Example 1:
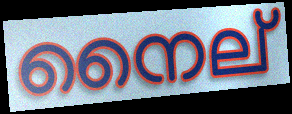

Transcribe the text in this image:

നൈല്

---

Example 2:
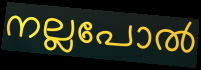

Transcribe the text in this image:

നല്ലപോൽ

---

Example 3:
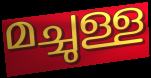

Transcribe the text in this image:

മച്ചുള്ള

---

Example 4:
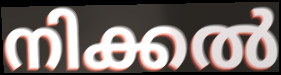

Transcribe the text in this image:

നിക്കൽ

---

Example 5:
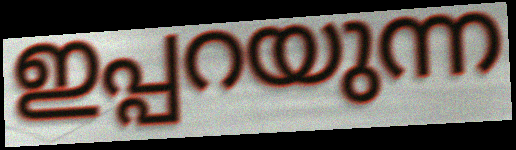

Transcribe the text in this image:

ഇപ്പറയുന്ന